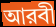
আরবী